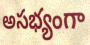
అసభ్యంగా